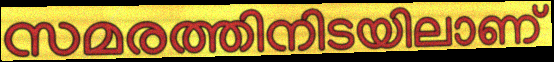
സമരത്തിനിടയിലാണ്